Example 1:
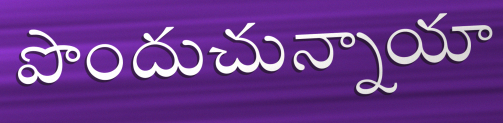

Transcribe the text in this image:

పొందుచున్నాయా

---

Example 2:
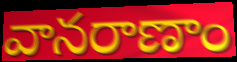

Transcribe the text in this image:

వానరాణాం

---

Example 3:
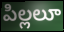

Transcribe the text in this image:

పిల్లలూ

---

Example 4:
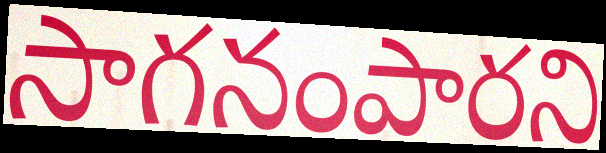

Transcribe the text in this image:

సాగనంపారని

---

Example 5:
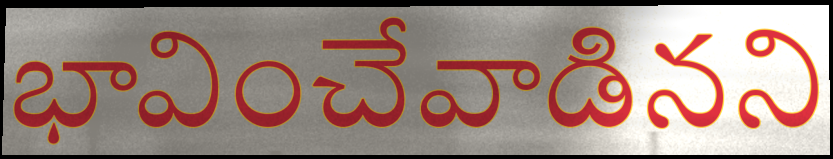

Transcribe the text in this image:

భావించేవాడినని